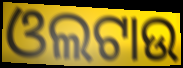
ଓଲଟାଉ